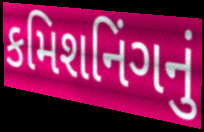
કમિશનિંગનું